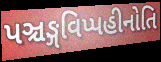
પઞ્ચઙ્ગવિપ્પહીનોતિ